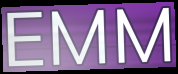
EMM